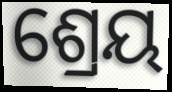
ଶ୍ରେୟ